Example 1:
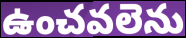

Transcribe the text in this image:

ఉంచవలెను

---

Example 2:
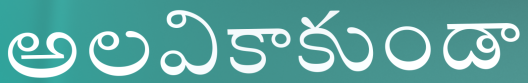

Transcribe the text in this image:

అలవికాకుండా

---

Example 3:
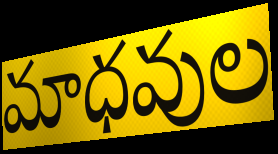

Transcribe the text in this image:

మాధవుల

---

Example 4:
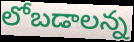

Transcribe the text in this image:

లోబడాలన్న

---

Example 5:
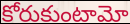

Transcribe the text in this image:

కోరుకుంటామో